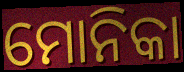
ମୋନିକା